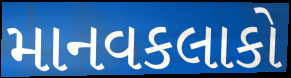
માનવકલાકો